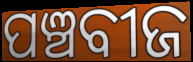
ପଞ୍ଚବୀଜ